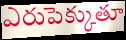
ఎరుపెక్కుతూ